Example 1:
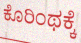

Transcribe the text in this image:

ಕೊರಿಂಥಕ್ಕೆ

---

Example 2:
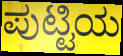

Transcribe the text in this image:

ಪುಟ್ಟಿಯ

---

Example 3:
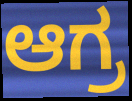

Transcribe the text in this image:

ಆಗ್ರ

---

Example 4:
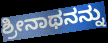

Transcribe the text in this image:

ಶ್ರೀನಾಥನನ್ನು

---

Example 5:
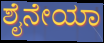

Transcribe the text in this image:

ಶೈನೇಯಾ